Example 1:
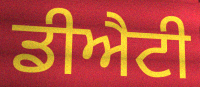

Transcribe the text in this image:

ਡੀਐਟੀ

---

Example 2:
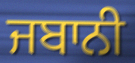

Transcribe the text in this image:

ਜਬਾਨੀ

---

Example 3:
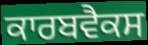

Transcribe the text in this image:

ਕਾਰਬਵੈਕਸ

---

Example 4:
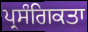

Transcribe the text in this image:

ਪ੍ਰਸੰਗਿਕਤਾ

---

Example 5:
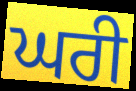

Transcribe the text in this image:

ਘਰੀ